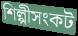
শিল্পীসংকট